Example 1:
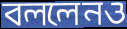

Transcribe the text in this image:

বললেনও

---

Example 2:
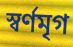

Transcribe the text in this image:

স্বর্ণমৃগ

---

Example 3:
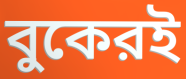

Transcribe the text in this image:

বুকেরই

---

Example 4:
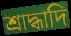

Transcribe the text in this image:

শ্রাদ্ধাদি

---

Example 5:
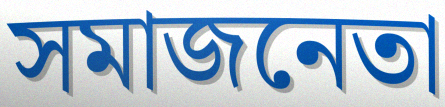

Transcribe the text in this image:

সমাজনেতা